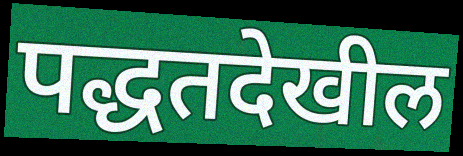
पद्धतदेखील